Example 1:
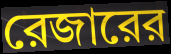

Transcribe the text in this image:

রেজারের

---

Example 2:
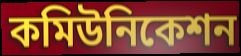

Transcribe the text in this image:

কমিউনিকেশন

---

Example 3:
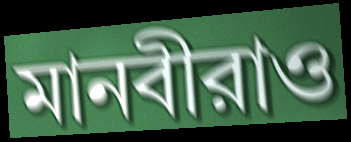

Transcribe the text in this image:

মানবীরাও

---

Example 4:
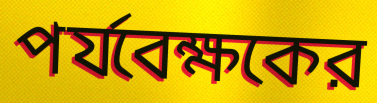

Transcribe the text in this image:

পর্যবেক্ষকের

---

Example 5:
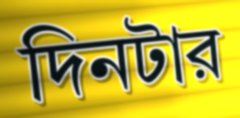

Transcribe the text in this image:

দিনটার